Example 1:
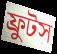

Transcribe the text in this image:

ফ্রুটস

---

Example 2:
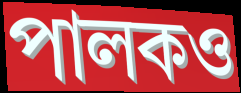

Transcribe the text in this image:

পালকও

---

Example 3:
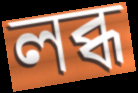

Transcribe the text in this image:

লব্ধ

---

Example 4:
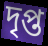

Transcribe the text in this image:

দৃপ্ত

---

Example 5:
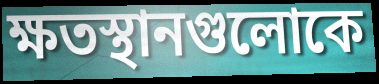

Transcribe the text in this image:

ক্ষতস্থানগুলোকে